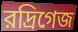
রদ্রিগেজ